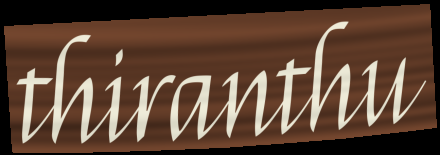
thiranthu